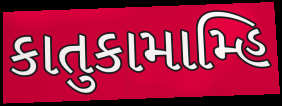
કાતુકામામ્હિ